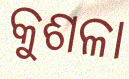
କୁଶଳା